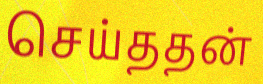
செய்ததன்